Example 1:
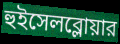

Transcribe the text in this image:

হুইসেলব্লোয়ার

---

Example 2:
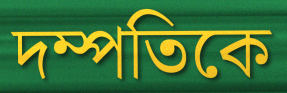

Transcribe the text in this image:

দম্পতিকে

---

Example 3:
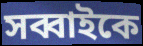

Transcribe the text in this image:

সব্বাইকে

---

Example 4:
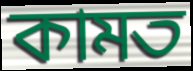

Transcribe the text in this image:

কামত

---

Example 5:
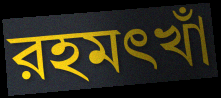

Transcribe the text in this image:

রহমৎখাঁ